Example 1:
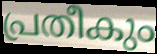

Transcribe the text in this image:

പ്രതീകും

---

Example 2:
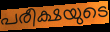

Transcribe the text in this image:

പരീക്ഷയുടെ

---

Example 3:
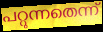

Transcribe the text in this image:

പറ്റുന്നതെന്ന്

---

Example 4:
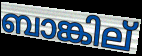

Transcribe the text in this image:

ബാങ്കില്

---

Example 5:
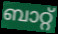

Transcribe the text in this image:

ബാറ്റ്